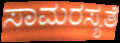
ಸಾಮರಸ್ಯತೆ